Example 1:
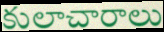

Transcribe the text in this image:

కులాచారాలు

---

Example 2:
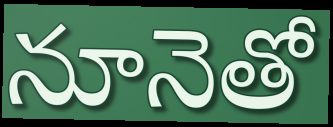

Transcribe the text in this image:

నూనెతో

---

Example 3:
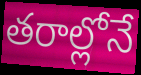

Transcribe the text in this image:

తరాల్లోనే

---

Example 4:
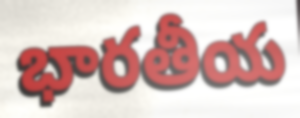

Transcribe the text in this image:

భారతీయ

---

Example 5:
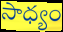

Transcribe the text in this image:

సాధ్యం